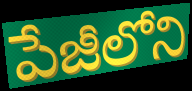
పేజీలోని